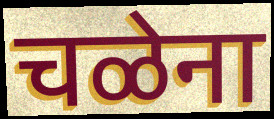
चळेना